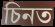
চিনত